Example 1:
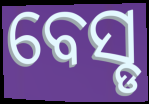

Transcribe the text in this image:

ବେସ୍ଡ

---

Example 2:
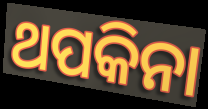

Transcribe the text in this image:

ଥପକିନା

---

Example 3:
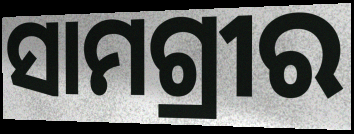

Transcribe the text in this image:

ସାମଗ୍ରୀର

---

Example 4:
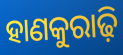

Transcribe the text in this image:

ହାଣକୁରାଢ଼ି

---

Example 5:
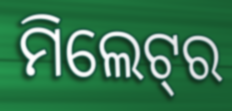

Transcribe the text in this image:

ମିଲେଟ୍‌ର